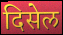
दिसेल